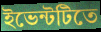
ইভেন্টটিতে